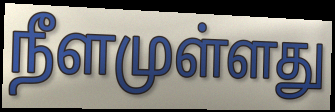
நீளமுள்ளது